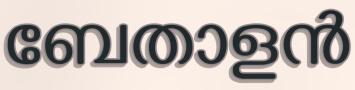
ബേതാളൻ